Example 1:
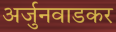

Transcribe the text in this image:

अर्जुनवाडकर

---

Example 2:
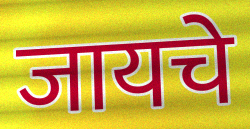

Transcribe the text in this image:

जायचे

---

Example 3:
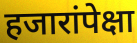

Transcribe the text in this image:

हजारांपेक्षा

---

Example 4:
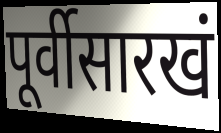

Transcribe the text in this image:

पूर्वीसारखं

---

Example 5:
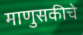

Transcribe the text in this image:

माणुसकीचे